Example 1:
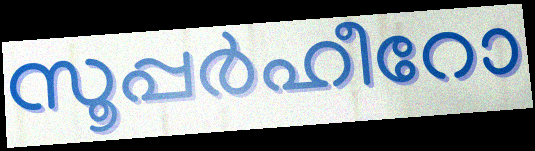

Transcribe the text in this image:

സൂപ്പർഹീറോ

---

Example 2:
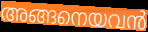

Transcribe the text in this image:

അങ്ങനെയവൻ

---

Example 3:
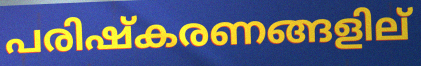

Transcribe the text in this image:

പരിഷ്കരണങ്ങളില്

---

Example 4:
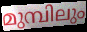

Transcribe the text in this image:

മുമ്പിലും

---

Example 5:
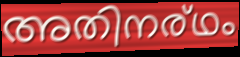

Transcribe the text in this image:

അതിനര്ഥം